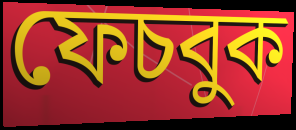
ফেচবুক